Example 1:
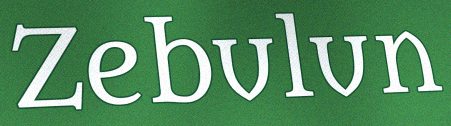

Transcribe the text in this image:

Zebulun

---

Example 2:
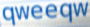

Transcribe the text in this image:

qweeqw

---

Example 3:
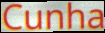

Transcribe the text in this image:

Cunha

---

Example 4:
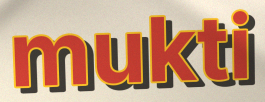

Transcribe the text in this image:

mukti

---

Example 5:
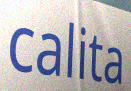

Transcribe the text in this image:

calita